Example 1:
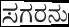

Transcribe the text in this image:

ಸಗರನು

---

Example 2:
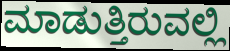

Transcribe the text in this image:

ಮಾಡುತ್ತಿರುವಲ್ಲಿ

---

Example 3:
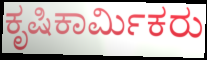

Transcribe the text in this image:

ಕೃಷಿಕಾರ್ಮಿಕರು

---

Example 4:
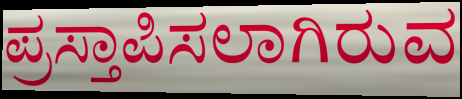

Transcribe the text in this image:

ಪ್ರಸ್ತಾಪಿಸಲಾಗಿರುವ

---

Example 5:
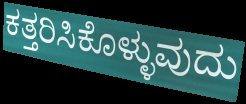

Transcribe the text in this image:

ಕತ್ತರಿಸಿಕೊಳ್ಳುವುದು